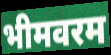
भीमवरम